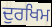
ਦੁਰਖਿਮ